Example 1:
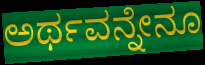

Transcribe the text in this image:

ಅರ್ಥವನ್ನೇನೂ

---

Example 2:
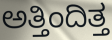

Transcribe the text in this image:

ಅತ್ತಿಂದಿತ್ತ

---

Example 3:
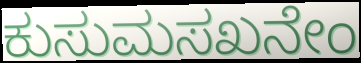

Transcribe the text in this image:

ಕುಸುಮಸಖನೇಂ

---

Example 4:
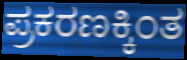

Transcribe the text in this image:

ಪ್ರಕರಣಕ್ಕಿಂತ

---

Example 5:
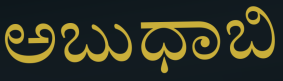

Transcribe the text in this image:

ಅಬುಧಾಬಿ